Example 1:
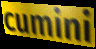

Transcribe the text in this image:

cumini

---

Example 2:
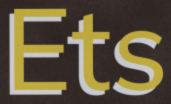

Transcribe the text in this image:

Ets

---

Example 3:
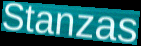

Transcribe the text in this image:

Stanzas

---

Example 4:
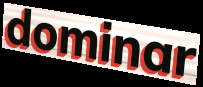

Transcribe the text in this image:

dominar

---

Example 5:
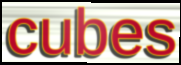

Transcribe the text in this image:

cubes